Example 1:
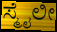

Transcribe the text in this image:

ಸ್ಮೈಲೀ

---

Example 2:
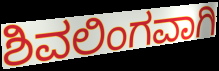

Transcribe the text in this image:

ಶಿವಲಿಂಗವಾಗಿ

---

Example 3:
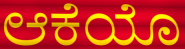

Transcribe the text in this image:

ಆಕೆಯೊ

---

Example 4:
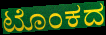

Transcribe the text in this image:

ಟೊಂಕದ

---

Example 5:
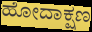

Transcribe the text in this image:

ಹೋದಾಕ್ಷಣ